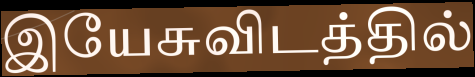
இயேசுவிடத்தில்